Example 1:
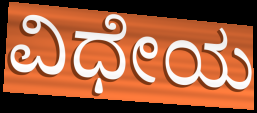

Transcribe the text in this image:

ವಿಧೇಯ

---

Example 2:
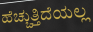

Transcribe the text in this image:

ಹೆಚ್ಚುತ್ತಿದೆಯಲ್ಲ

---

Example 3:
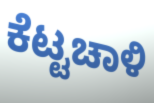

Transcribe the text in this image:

ಕೆಟ್ಟಚಾಳಿ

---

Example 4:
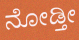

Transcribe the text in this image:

ನೋಡ್ತೀ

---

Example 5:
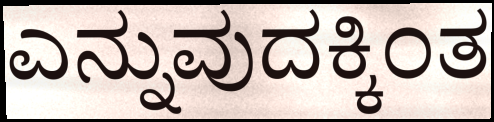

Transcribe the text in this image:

ಎನ್ನುವುದಕ್ಕಿಂತ